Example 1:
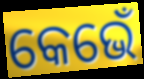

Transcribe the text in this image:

କେଭେଁ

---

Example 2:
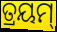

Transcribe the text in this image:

ତ୍ରୟମ୍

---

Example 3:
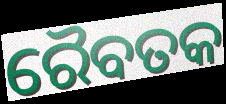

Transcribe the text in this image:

ରୈବତକ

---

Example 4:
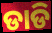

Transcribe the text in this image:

ଡାଡି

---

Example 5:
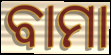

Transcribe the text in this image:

ବାମା